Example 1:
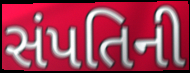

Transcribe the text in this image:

સંપતિની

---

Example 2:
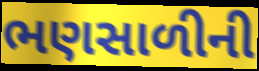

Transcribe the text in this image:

ભણસાળીની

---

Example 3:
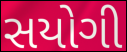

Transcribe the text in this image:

સયોગી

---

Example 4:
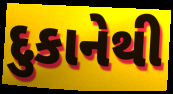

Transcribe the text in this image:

દુકાનેથી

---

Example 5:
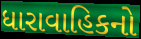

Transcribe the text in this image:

ધારાવાહિકનો